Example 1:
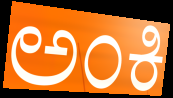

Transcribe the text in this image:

ಅಂಕಿ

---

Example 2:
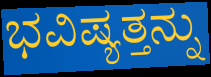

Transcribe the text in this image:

ಭವಿಷ್ಯತ್ತನ್ನು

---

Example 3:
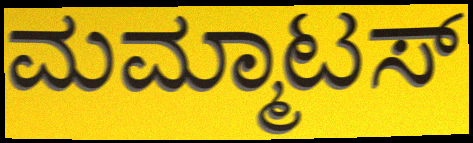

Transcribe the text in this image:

ಮಮ್ಮಾಟಸ್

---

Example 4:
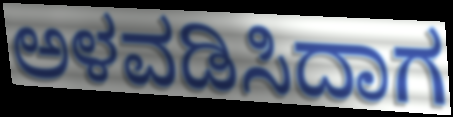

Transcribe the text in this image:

ಅಳವಡಿಸಿದಾಗ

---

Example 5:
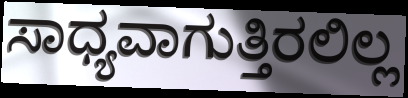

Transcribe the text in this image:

ಸಾಧ್ಯವಾಗುತ್ತಿರಲಿಲ್ಲ